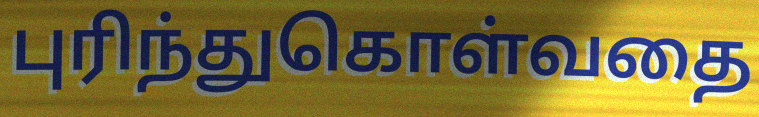
புரிந்துகொள்வதை